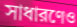
সাধারণেও